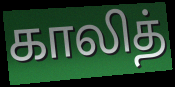
காலித்